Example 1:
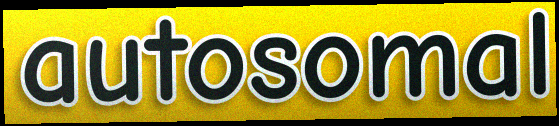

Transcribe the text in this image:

autosomal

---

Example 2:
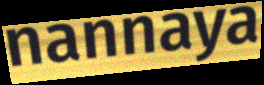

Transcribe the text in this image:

nannaya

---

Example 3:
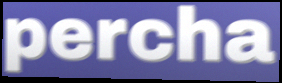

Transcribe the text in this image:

percha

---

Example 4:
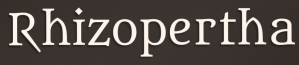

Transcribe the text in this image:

Rhizopertha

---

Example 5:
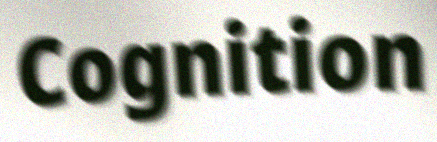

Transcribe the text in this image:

Cognition